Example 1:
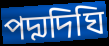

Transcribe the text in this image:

পদ্মদিঘি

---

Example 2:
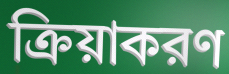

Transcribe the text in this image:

ক্রিয়াকরণ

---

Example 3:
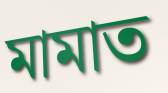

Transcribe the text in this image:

মামাত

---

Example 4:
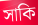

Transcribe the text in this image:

সাকি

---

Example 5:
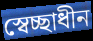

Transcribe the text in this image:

স্বেচ্ছাধীন